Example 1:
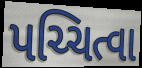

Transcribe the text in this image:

પચ્ચિત્વા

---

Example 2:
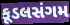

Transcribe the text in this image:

કૂડલસંગમ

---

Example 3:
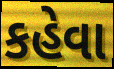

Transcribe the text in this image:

કહેવા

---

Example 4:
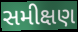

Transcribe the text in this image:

સમીક્ષણ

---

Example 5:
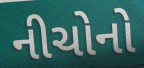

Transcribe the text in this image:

નીચોનો